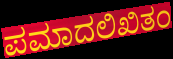
ಪಮಾದಲಿಖಿತಂ